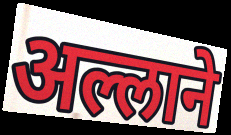
अल्लाने